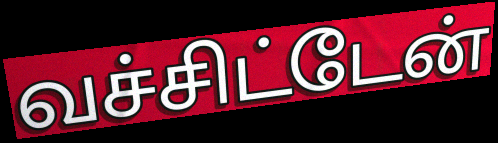
வச்சிட்டேன்